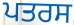
ਪਤਰਸ